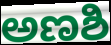
ಅಣಶಿ